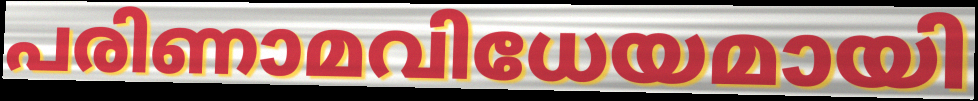
പരിണാമവിധേയമായി